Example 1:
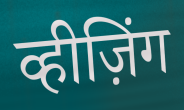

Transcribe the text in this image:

व्हीज़िंग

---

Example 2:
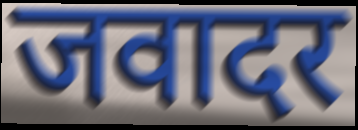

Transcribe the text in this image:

जवादर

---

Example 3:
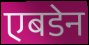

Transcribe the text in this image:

एबडेन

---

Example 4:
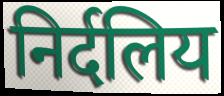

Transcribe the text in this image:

निर्दलिय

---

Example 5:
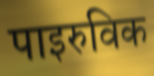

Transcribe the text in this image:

पाइरुविक